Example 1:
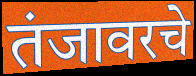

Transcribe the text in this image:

तंजावरचे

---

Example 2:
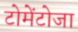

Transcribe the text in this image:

टोमेंटोजा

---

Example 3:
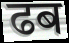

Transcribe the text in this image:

ढब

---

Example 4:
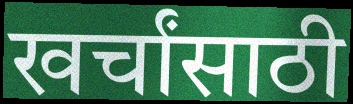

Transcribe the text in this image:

खर्चांसाठी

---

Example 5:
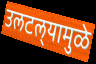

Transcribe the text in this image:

उलटल्यामुळे